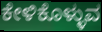
ಕೇಳಿಕೊಳ್ಳುವ